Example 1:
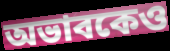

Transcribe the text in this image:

অভাবকেও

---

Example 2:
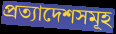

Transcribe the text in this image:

প্রত্যাদেশসমূহ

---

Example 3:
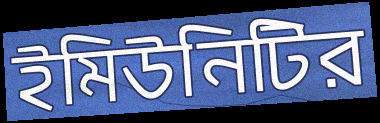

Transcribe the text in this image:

ইমিউনিটির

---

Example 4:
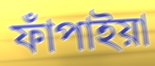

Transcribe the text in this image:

ফাঁপাইয়া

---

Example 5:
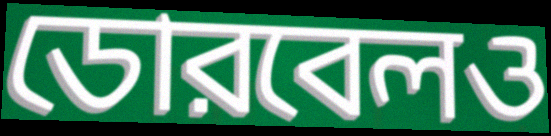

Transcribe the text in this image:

ডোরবেলও